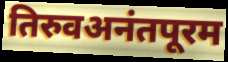
तिरुवअनंतपूरम